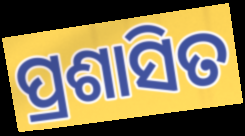
ପ୍ରଶାସିତ